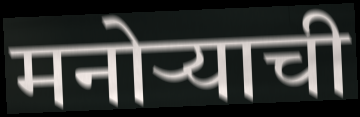
मनोऱ्याची